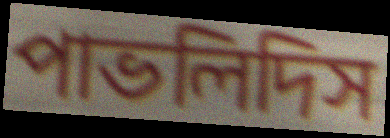
পাভলিদিস